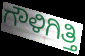
ಗೌಳಿಗಿತ್ತಿ